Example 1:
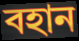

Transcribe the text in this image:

বহান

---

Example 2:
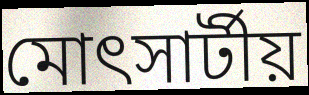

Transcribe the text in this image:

মোৎসার্টীয়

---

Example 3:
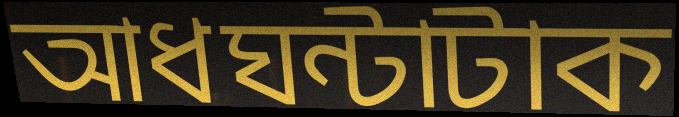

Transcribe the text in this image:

আধঘন্টাটাক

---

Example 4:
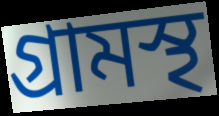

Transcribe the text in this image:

গ্রামস্থ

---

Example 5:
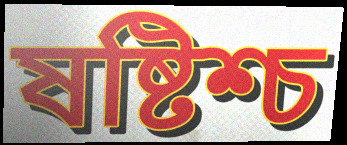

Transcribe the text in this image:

ষষ্টিশ্চ